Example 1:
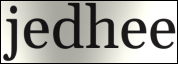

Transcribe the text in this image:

jedhee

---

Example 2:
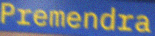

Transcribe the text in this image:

Premendra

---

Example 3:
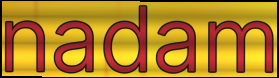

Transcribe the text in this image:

nadam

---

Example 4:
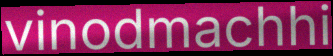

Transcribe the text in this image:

vinodmachhi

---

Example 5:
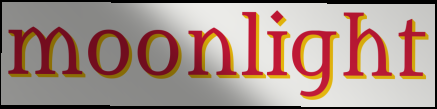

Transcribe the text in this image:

moonlight